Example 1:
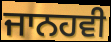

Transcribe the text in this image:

ਜਾਨਹਵੀ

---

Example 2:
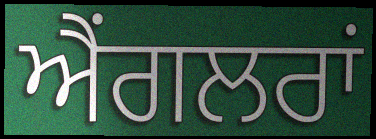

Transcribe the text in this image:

ਐਂਗਲਰਾਂ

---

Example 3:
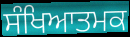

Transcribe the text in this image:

ਸੰਖਿਆਤਮਕ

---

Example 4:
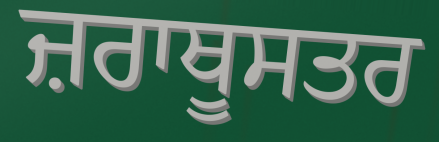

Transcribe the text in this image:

ਜ਼ਰਾਥੂਸਤਰ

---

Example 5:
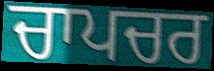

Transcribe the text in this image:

ਚਾਪਚਰ